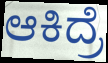
ಆಕಿದ್ರೆ